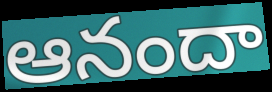
ఆనందా